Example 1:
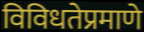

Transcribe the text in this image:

विविधतेप्रमाणे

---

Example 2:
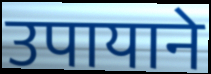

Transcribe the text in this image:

उपायाने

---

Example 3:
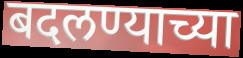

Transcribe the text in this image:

बदलण्याच्या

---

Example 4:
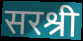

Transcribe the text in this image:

सरश्री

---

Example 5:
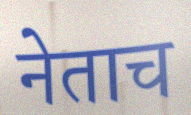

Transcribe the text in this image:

नेताच